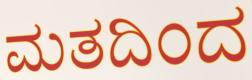
ಮತದಿಂದ